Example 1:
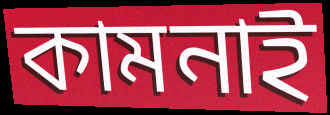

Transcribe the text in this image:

কামনাই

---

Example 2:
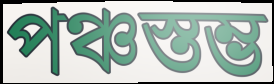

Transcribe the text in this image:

পঞ্চস্তম্ভ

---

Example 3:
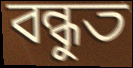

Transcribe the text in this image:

বন্ধুত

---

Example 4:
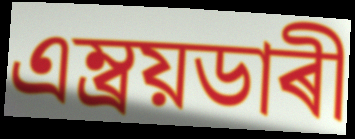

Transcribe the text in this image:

এম্ব্ৰয়ডাৰী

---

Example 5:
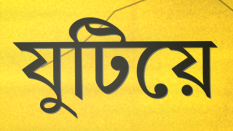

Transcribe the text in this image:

যুটিয়ে